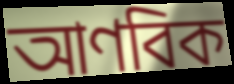
আণবিক